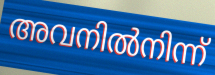
അവനിൽനിന്ന്